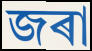
জৰা